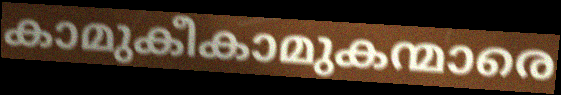
കാമുകീകാമുകന്മാരെ